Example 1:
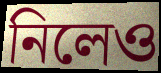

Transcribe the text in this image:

নিলেও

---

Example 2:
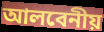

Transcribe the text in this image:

আলবেনীয়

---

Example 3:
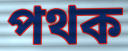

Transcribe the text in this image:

পথক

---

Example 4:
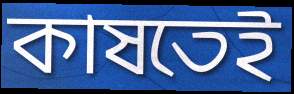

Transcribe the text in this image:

কাষতেই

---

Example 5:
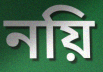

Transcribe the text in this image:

নয়ি